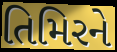
તિમિરને